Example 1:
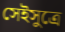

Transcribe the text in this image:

সেইসুত্রে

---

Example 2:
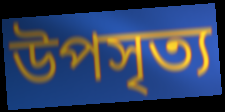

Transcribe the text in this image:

উপসৃত্য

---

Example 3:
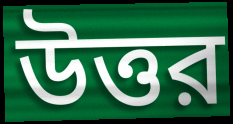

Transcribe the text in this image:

উত্তর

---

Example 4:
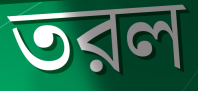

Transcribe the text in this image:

তরল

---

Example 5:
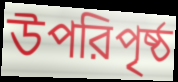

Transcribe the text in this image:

উপরিপৃষ্ঠ